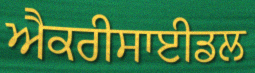
ਐਕਰੀਸਾਈਡਲ